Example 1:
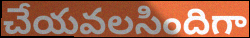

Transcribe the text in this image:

చేయవలసిందిగా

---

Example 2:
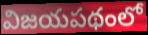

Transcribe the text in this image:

విజయపథంలో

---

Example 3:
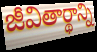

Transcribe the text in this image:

జీవితార్థాన్ని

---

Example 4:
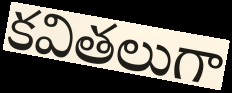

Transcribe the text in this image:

కవితలుగా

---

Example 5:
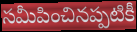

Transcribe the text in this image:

సమీపించినప్పటికీ